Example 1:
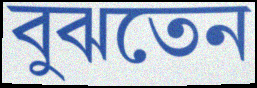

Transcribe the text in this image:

বুঝতেন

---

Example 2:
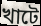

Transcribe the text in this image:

খাটে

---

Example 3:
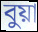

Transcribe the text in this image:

বুয়া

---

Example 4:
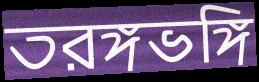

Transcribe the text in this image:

তরঙ্গভঙ্গি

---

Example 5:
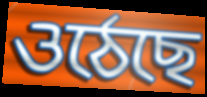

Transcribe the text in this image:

ওঠেছে